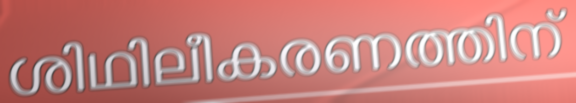
ശിഥിലീകരണത്തിന്